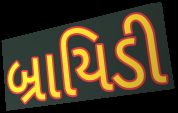
બ્રાયિડી